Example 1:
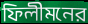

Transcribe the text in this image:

ফিলীমনের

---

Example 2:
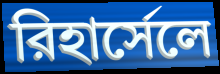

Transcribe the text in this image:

রিহার্সেলে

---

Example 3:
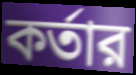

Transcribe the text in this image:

কর্তার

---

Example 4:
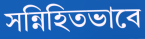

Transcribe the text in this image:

সন্নিহিতভাবে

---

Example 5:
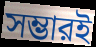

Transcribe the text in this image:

সম্ভারই